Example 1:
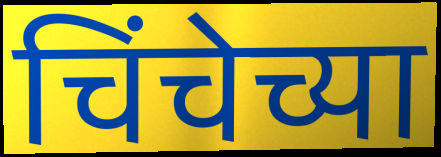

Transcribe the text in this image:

चिंचेच्या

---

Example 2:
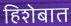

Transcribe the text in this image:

हिशेबात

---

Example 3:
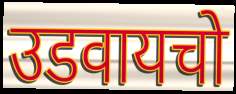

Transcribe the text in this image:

उडवायचो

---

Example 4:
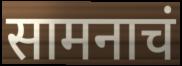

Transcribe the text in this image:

सामनाचं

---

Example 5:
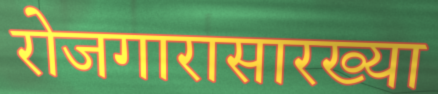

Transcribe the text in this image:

रोजगारासारख्या